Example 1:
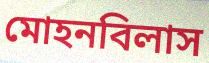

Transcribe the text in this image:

মোহনবিলাস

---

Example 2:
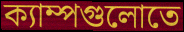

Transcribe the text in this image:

ক্যাম্পগুলোতে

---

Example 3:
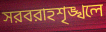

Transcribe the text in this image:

সরবরাহশৃঙ্খলে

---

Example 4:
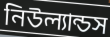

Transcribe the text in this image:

নিউল্যান্ডস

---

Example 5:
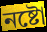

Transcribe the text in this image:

নষ্টো